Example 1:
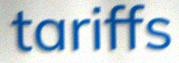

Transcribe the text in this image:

tariffs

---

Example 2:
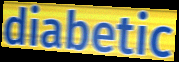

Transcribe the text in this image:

diabetic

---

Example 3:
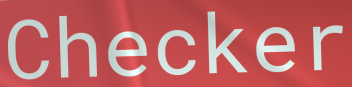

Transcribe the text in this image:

Checker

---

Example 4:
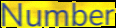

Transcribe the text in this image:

Number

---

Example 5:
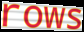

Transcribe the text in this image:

rows